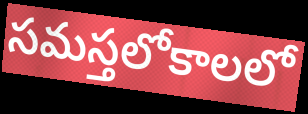
సమస్తలోకాలలో